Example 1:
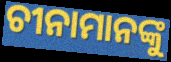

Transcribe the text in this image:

ଚୀନାମାନଙ୍କୁ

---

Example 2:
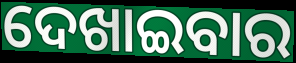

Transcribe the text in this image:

ଦେଖାଇବାର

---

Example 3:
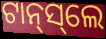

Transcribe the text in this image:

ଟାନ୍‌ସ୍‌ଲେ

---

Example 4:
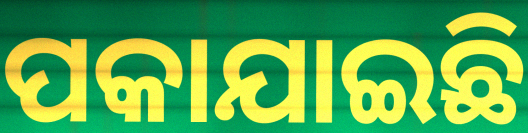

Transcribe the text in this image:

ପକାଯାଇଛି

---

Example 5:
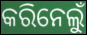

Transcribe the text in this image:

କରିନେଲୁଁ